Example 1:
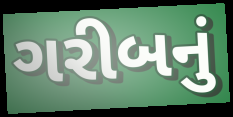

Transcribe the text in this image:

ગરીબનું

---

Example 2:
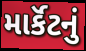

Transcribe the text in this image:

માર્કૅટનું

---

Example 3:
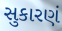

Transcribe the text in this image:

સુકારણં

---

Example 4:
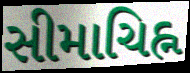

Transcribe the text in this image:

સીમાચિહ્ન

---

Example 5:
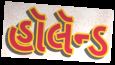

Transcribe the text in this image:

હૉલૅન્ડ